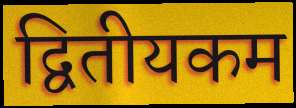
द्वितीयकम